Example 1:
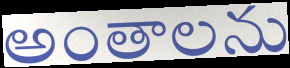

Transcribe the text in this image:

అంతాలను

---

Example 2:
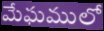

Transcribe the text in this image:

మేఘములో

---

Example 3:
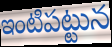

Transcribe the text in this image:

ఇంటిపట్టున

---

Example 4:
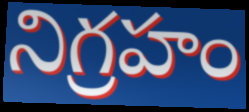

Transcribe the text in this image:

నిగ్రహం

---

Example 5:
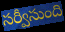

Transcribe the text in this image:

సర్వీసుంది